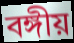
বঙ্গীয়